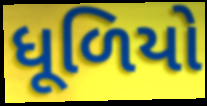
ધૂળિયો